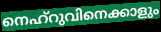
നെഹ്റുവിനെക്കാളും